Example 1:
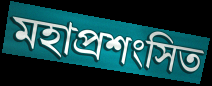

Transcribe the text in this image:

মহাপ্রশংসিত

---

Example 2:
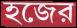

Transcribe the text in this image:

হজের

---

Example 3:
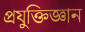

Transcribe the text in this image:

প্রযুক্তিজ্ঞান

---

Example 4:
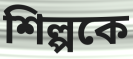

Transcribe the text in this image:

শিল্পকে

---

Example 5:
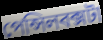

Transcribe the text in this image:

পেন্সিলবক্সটা